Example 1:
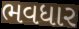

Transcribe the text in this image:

ભવધાર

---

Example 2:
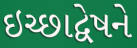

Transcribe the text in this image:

ઇચ્છાદ્વેષને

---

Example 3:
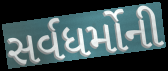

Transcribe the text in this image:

સર્વધર્મોની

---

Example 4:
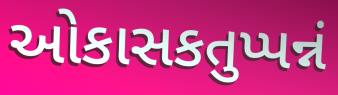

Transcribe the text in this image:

ઓકાસકતુપ્પન્નં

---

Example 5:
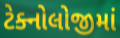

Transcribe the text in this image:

ટેક્નોલોજીમાં